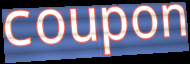
coupon